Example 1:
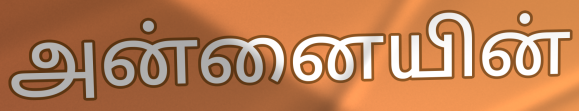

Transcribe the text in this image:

அன்னையின்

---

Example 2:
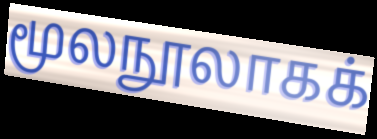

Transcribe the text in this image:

மூலநூலாகக்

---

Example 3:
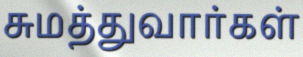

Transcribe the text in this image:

சுமத்துவார்கள்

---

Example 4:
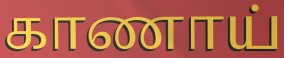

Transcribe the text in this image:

காணாய்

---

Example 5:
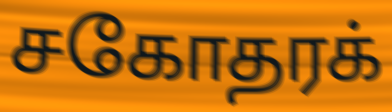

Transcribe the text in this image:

சகோதரக்